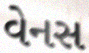
વેનસ